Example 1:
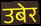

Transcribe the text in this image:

उबेर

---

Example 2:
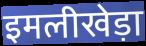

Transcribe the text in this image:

इमलीखेड़ा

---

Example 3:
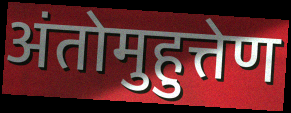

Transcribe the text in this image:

अंतोमुहुत्तेण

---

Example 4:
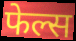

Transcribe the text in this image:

फेल्स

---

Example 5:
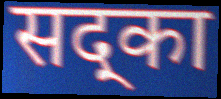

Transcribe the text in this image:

सद्का